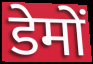
डेमों